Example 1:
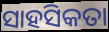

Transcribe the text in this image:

ସାହସିକତା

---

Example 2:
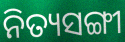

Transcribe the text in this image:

ନିତ୍ୟସଙ୍ଗୀ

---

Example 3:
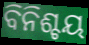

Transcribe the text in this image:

ବିନିଶ୍ଚୟ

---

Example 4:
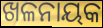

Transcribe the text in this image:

ଖଳନାୟକ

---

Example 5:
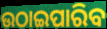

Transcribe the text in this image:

ଉଠାଇପାରିବ